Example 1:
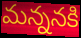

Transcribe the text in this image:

మన్ననకి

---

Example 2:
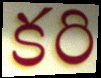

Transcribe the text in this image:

కరి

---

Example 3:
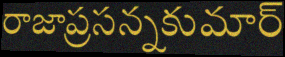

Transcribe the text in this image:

రాజాప్రసన్నకుమార్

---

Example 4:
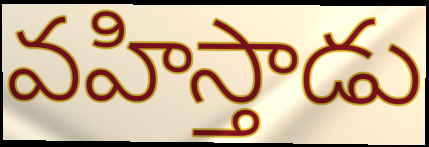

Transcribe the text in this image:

వహిస్తాడు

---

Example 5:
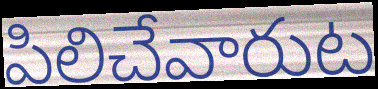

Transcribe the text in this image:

పిలిచేవారుట